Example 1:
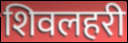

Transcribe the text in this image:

शिवलहरी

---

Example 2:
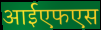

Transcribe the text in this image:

आईएफएस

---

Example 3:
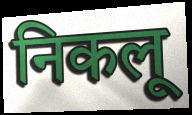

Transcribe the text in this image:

निकलू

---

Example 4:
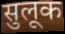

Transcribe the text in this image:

सुलूक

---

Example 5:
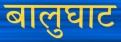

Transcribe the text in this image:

बालुघाट